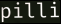
pilli